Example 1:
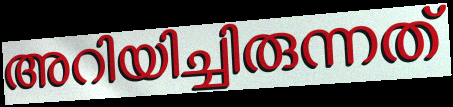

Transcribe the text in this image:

അറിയിച്ചിരുന്നത്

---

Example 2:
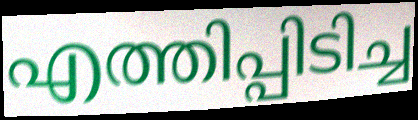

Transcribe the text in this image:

എത്തിപ്പിടിച്ച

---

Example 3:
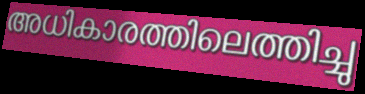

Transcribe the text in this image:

അധികാരത്തിലെത്തിച്ചു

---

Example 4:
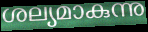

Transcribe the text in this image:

ശല്യമാകുന്നു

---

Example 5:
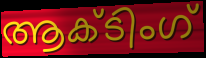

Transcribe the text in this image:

ആക്ടിംഗ്